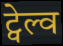
ट्वेल्व